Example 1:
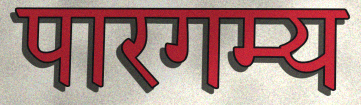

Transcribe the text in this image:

पारगम्य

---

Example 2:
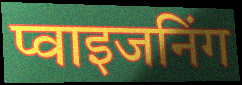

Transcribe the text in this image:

प्वाइजनिंग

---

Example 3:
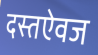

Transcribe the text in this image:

दस्तऐवज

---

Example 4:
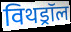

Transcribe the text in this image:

विथड्रॉल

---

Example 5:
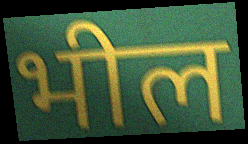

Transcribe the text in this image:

भील